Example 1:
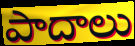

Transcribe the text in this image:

పాదాలు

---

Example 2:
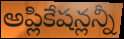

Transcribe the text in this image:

అప్లికేషన్లన్నీ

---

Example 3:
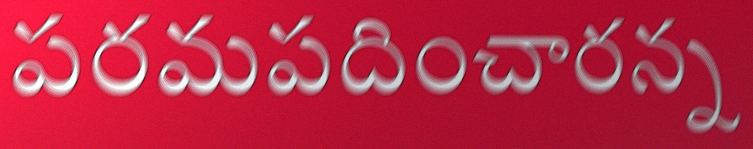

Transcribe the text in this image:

పరమపదించారన్న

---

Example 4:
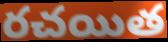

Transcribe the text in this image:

రచయిత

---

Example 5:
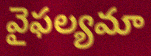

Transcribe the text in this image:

వైఫల్యమా